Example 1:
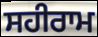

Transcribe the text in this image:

ਸਹੀਰਾਮ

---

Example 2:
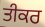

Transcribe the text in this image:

ਤੀਕਰ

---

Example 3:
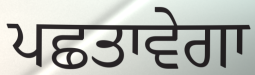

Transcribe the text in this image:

ਪਛਤਾਵੇਗਾ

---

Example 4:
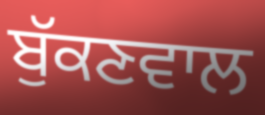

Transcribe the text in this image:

ਬੁੱਕਣਵਾਲ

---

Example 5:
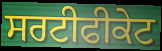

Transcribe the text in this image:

ਸਰਟੀਫੀਕੇਟ